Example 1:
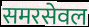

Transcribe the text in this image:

समरसेवल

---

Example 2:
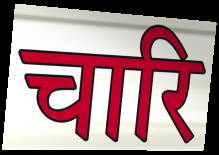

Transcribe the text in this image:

चारि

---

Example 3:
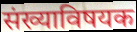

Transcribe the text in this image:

संख्याविषयक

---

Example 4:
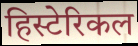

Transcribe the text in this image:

हिस्टेरिकल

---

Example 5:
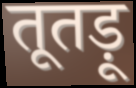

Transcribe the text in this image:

तूतड़ू